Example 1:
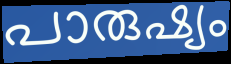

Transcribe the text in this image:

പാരുഷ്യം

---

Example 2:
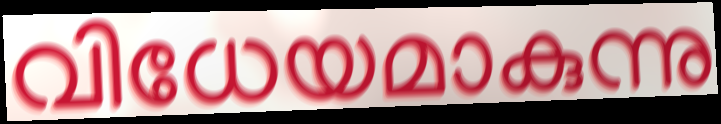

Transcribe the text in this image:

വിധേയമാകുന്നു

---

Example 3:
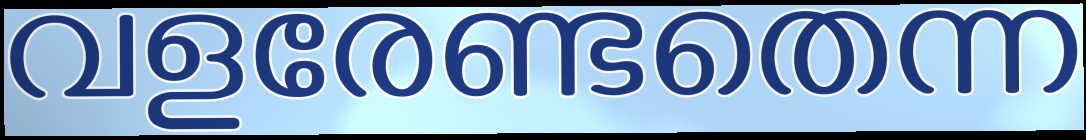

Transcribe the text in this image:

വളരേണ്ടതെന്ന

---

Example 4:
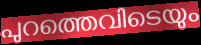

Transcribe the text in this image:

പുറത്തെവിടെയും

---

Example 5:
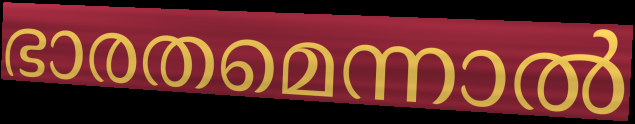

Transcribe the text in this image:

ഭാരതമെന്നാൽ